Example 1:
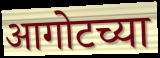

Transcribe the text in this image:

आगोटच्या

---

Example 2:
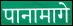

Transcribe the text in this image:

पानामागे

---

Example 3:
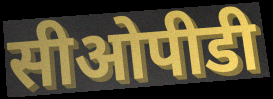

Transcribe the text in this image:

सीओपीडी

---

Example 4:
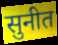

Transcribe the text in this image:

सुनीत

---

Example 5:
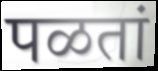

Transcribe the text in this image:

पळतां